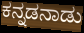
ಕನ್ನಡನಾಡು